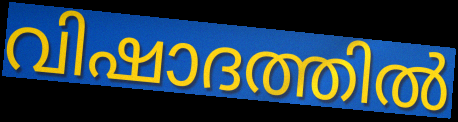
വിഷാദത്തിൽ